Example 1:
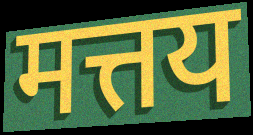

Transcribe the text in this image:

मत्तय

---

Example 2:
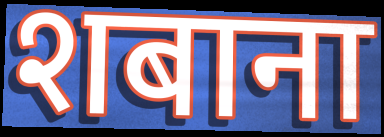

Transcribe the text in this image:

शबाना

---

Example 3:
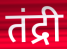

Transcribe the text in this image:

तंद्री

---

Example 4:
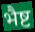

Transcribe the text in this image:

भैष्ट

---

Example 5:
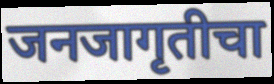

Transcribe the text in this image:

जनजागृतीचा